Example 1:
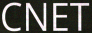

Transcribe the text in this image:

CNET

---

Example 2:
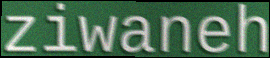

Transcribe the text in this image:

ziwaneh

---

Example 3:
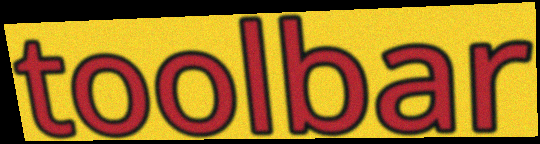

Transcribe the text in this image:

toolbar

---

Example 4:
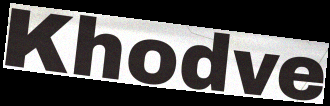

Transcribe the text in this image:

Khodve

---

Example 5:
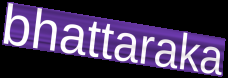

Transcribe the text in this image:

bhattaraka